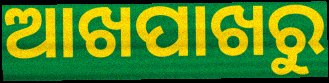
ଆଖପାଖରୁ